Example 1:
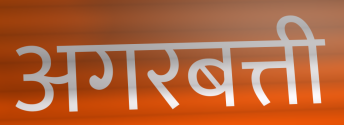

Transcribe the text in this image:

अगरबत्ती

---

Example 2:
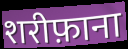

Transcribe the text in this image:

शरीफ़ाना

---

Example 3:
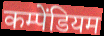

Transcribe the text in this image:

कम्पेंडियम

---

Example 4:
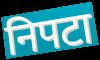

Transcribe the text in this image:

निपटा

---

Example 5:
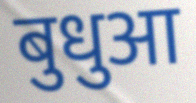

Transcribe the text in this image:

बुधुआ